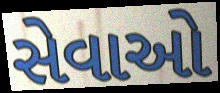
સેવાઓ